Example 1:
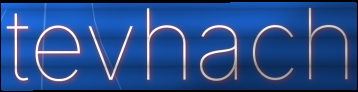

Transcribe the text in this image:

tevhach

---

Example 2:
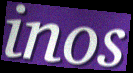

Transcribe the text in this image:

inos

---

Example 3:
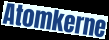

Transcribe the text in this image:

Atomkerne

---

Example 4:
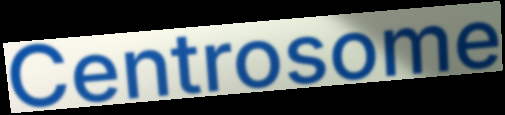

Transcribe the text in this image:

Centrosome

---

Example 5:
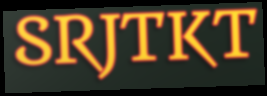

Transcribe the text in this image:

SRJTKT